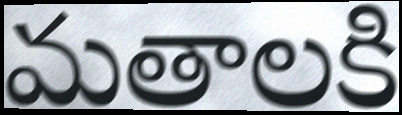
మతాలకి